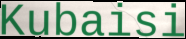
Kubaisi